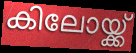
കിലോയ്ക്ക്